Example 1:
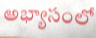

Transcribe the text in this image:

అభ్యాసంలో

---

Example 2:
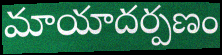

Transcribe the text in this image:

మాయాదర్పణం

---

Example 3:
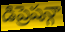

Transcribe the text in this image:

డిప్రెషన్గా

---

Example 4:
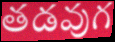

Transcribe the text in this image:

తడవుగ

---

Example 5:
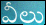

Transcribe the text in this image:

వీలు